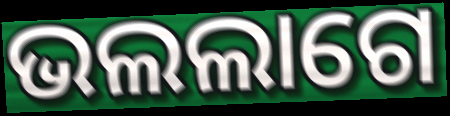
ଭଲଲାଗେ